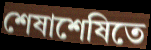
শেষাশেষিতে